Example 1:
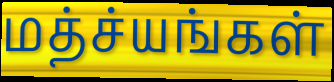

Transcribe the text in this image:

மத்ச்யங்கள்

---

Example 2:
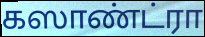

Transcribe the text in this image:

கஸாண்ட்ரா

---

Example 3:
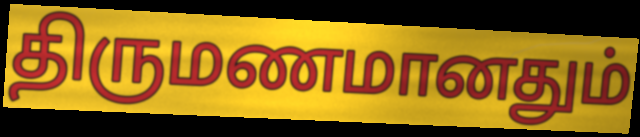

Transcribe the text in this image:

திருமணமானதும்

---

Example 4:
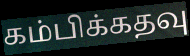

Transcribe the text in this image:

கம்பிக்கதவு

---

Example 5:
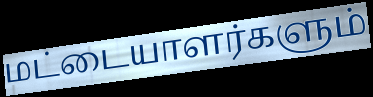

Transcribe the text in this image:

மட்டையாளர்களும்